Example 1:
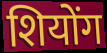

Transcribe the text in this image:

शियोंग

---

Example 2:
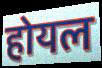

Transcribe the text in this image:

होयल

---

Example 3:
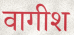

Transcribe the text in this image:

वागीश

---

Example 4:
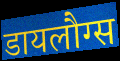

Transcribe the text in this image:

डायलौग्स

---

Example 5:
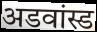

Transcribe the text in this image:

अडवांस्ड